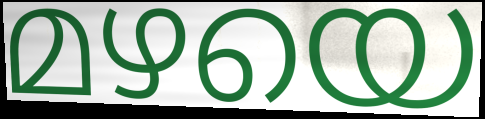
മഴയെ